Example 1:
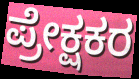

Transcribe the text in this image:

ಪ್ರೇಕ್ಷಕರ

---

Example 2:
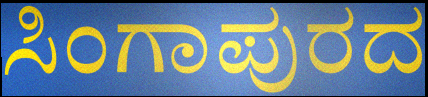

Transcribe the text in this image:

ಸಿಂಗಾಪುರದ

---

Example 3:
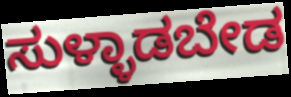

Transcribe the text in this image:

ಸುಳ್ಳಾಡಬೇಡ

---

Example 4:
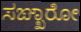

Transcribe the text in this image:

ಸಙ್ಖಾರೋ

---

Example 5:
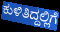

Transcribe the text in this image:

ಕುಳಿತಿದ್ದಲ್ಲಿಗೆ